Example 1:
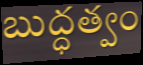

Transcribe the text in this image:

బుద్ధత్వం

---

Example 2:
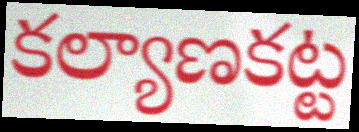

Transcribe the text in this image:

కల్యాణకట్ట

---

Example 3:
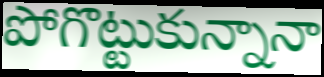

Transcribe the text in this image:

పోగొట్టుకున్నానా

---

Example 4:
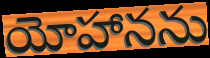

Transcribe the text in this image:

యోహానను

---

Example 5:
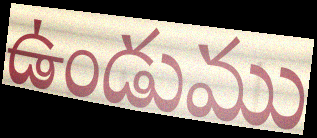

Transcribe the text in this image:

ఉండుము